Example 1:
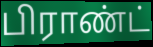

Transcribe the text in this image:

பிராண்ட்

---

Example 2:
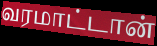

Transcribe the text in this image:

வரமாட்டான்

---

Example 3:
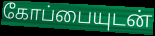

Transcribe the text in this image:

கோப்பையுடன்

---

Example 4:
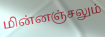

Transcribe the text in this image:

மின்னஞ்சலும்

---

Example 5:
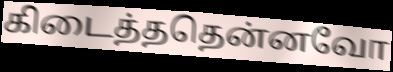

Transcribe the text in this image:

கிடைத்ததென்னவோ